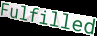
Fulfilled